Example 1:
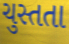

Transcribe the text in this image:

ચુસ્તતા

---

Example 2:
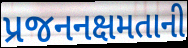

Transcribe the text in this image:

પ્રજનનક્ષમતાની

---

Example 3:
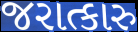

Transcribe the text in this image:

જરાત્કારુ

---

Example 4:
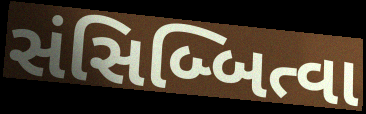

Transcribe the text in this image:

સંસિબ્બિત્વા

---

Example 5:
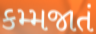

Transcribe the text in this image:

કમ્મજાતં